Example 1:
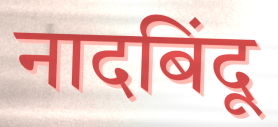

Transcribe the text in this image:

नादबिंदू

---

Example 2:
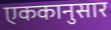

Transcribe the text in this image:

एककानुसार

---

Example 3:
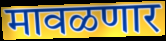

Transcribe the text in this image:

मावळणार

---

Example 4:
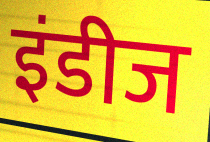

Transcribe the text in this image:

इंडीज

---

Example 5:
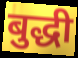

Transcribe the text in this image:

बुद्धी